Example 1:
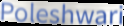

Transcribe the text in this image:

Poleshwari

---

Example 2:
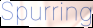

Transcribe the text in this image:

Spurring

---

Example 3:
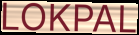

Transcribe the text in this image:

LOKPAL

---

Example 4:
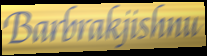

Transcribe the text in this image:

Barbrakjishnu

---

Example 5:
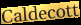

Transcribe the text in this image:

Caldecott